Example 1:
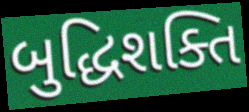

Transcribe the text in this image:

બુદ્ધિશક્તિ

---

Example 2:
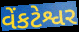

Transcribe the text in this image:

વેંકટેશ્વર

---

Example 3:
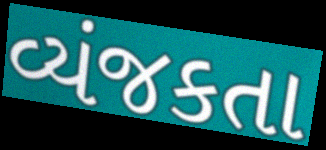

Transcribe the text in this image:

વ્યંજકતા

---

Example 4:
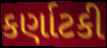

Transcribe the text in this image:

કર્ણાટકી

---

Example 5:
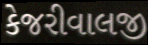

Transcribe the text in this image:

કેજરીવાલજી